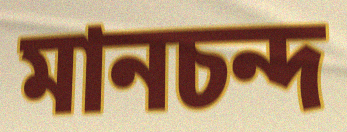
মানচন্দ